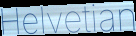
Helvetian